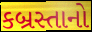
કબ્રસ્તાનો